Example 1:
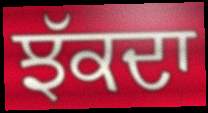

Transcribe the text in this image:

ਝੱਕਦਾ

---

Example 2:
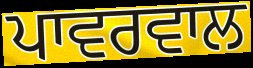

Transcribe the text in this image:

ਪਾਵਰਵਾਲ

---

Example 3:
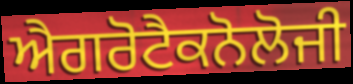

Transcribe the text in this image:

ਐਗਰੋਟੈਕਨੋਲੋਜੀ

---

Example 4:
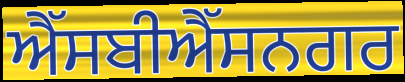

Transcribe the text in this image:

ਐੱਸਬੀਐੱਸਨਗਰ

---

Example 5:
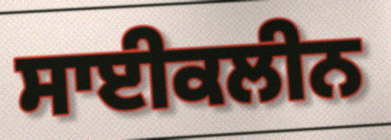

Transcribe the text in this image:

ਸਾਈਕਲੀਨ